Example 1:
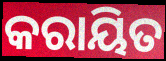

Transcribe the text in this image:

କରାୟିତ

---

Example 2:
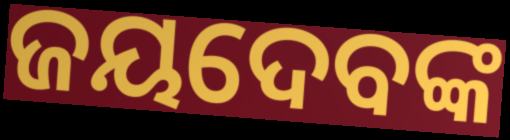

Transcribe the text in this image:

ଜୟଦେବଙ୍କ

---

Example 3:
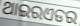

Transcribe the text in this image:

ଥାଇରଏଡର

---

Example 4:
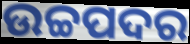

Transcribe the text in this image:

ଉଚ୍ଚପଦର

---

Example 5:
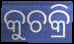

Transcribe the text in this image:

କୁଚକ୍ରି